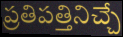
ప్రతిపత్తినిచ్చే